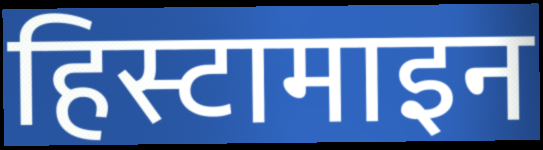
हिस्टामाइन